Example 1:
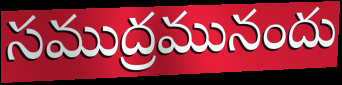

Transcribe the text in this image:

సముద్రమునందు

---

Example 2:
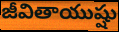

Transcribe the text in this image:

జీవితాయుష్షు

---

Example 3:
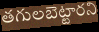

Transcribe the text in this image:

తగులబెట్టారని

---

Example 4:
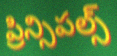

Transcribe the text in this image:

ప్రిన్సిపల్స్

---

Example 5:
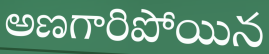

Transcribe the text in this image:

అణగారిపోయిన